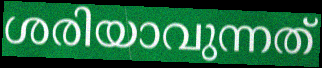
ശരിയാവുന്നത്